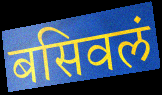
बसिवलं